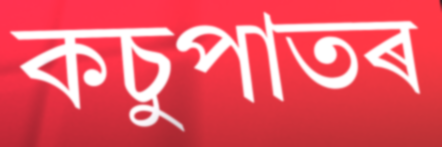
কচুপাতৰ